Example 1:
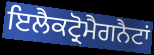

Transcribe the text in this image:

ਇਲੈਕਟ੍ਰੋਮੈਗਨੈਟਾਂ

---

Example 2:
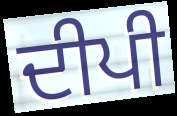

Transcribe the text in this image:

ਦੀਪੀ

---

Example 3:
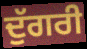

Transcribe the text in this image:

ਦੁੱਗਰੀ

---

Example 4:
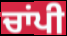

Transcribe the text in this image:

ਚਾਂਪੀ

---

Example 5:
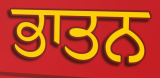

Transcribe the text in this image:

ਭਾਤਨ